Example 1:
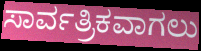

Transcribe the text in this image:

ಸಾರ್ವತ್ರಿಕವಾಗಲು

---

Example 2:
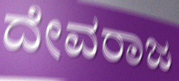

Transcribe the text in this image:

ದೇವರಾಜ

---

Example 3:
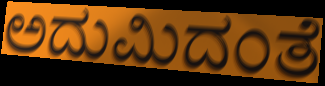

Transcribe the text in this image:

ಅದುಮಿದಂತೆ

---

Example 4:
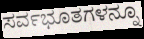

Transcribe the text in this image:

ಸರ್ವಭೂತಗಳನ್ನೂ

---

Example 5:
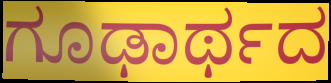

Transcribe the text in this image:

ಗೂಢಾರ್ಥದ